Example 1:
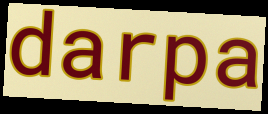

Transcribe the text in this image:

darpa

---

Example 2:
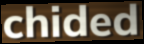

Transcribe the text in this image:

chided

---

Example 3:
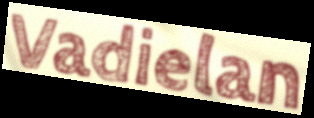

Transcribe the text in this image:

Vadielan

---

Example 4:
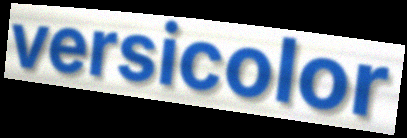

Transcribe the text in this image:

versicolor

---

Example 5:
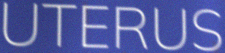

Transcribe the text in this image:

UTERUS